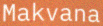
Makvana